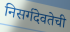
निसर्गदेवतेची